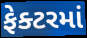
ફેક્ટરમાં